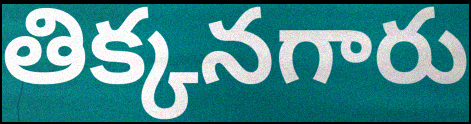
తిక్కనగారు